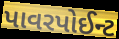
પાવરપોઈન્ટ